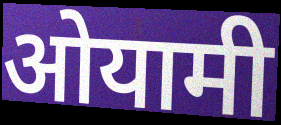
ओयामी